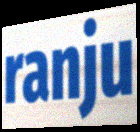
ranju